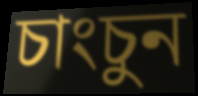
চাংচুন